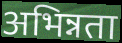
अभिन्नता